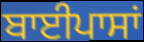
ਬਾਈਪਾਸਾਂ